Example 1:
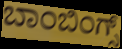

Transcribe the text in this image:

ಬಾಂಬಿಂಗ್ಸ್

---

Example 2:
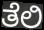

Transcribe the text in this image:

ತೆಲಿ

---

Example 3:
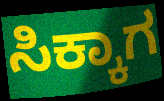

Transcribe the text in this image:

ಸಿಕ್ಕಾಗ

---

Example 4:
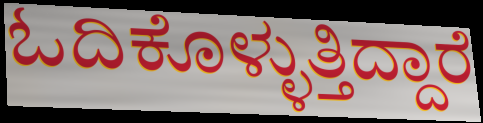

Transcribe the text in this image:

ಓದಿಕೊಳ್ಳುತ್ತಿದ್ದಾರೆ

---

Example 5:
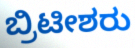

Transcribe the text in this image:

ಬ್ರಿಟೀಶರು